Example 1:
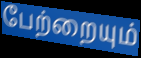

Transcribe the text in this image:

பேற்றையும்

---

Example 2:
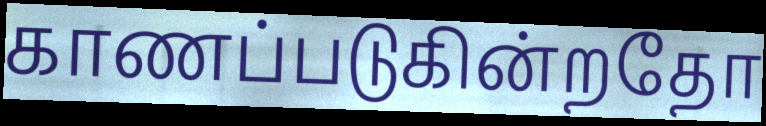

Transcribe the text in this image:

காணப்படுகின்றதோ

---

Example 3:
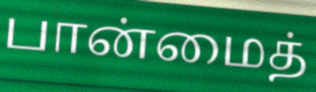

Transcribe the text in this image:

பான்மைத்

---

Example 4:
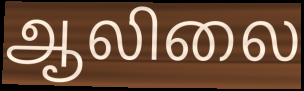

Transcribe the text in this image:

ஆலிலை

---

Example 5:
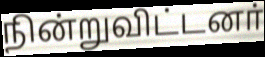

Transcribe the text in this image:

நின்றுவிட்டனர்